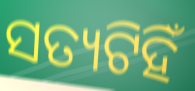
ସତ୍ୟଟିହିଁ